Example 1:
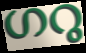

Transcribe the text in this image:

ഗറു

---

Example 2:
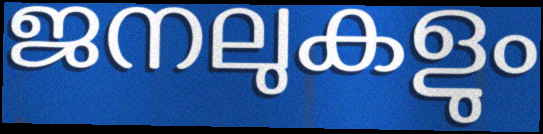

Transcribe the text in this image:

ജനലുകളും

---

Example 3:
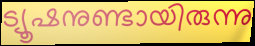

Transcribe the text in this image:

ട്യൂഷനുണ്ടായിരുന്നു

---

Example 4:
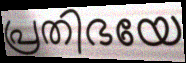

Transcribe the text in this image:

പ്രതിഭയേ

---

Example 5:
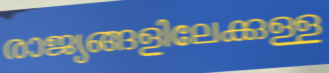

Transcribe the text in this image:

രാജ്യങ്ങളിലേക്കുള്ള